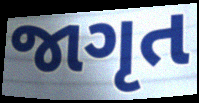
જાગૃત